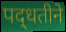
पद्‍धतीने